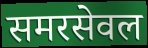
समरसेवल